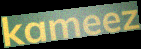
kameez